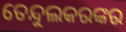
ତେନ୍ଦୁଲକରଙ୍କର